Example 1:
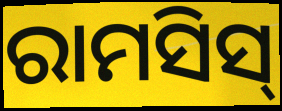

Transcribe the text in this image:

ରାମସିସ୍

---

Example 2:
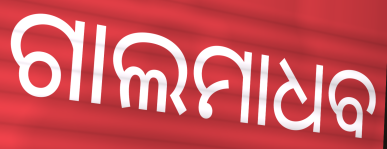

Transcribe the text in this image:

ଗାଲମାଧବ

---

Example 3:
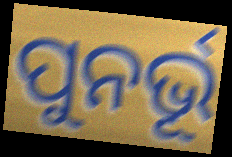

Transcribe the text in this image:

ପୁନର୍ଭୂ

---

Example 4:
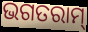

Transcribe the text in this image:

ଭଗତରାମ୍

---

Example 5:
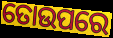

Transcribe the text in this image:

ତୋଉପରେ